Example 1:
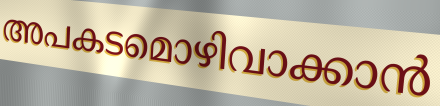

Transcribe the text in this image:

അപകടമൊഴിവാക്കാൻ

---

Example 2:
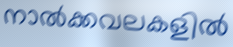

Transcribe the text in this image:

നാൽക്കവലകളിൽ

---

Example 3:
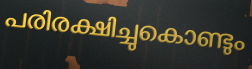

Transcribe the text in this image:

പരിരക്ഷിച്ചുകൊണ്ടും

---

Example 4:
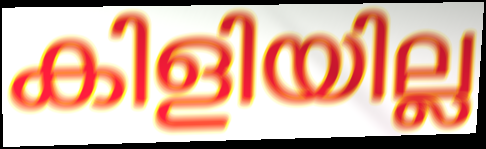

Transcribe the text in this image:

കിളിയില്ല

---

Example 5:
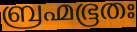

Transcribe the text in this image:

ബ്രഹ്മഭൂതഃ